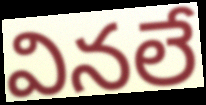
వినలే